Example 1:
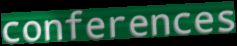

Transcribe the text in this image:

conferences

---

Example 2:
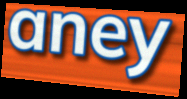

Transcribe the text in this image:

aney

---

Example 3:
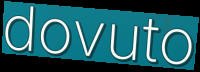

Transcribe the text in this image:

dovuto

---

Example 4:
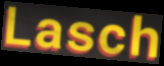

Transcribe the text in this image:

Lasch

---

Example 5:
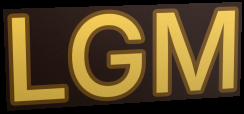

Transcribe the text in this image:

LGM